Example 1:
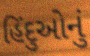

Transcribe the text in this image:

હિંદુઓનું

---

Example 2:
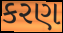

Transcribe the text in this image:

કરણ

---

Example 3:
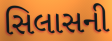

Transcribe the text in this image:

સિલાસની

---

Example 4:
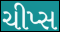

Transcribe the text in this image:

ચીપ્સ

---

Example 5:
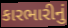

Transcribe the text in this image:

કારભારીનું